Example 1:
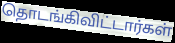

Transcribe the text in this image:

தொடங்கிவிட்டார்கள்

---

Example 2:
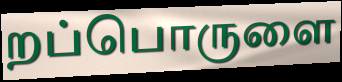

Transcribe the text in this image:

றப்பொருளை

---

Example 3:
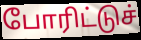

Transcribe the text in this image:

போரிட்டுச்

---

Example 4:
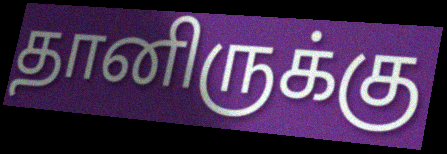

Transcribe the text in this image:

தானிருக்கு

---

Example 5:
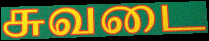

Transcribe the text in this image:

சுவடை